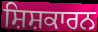
ਸ਼ਿਸ਼ਕਾਰਨ